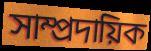
সাম্প্রদায়িক